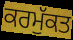
ਕਰਮੁੱਕਤ